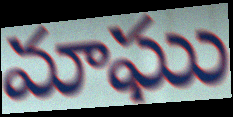
మాఘు